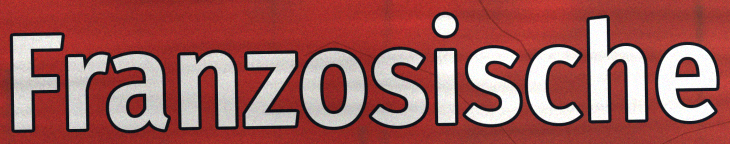
Franzosische